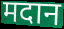
मदान